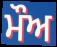
ਮੌਅ